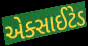
એક્સાઈટેડ